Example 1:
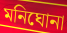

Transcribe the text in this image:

মনিঘোনা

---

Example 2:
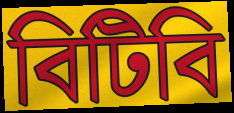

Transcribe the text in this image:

বিটিবি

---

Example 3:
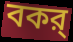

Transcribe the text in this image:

বকর্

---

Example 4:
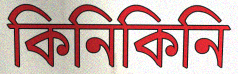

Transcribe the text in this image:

কিনিকিনি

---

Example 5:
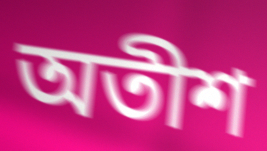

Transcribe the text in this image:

অতীশ